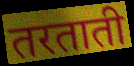
तरताती